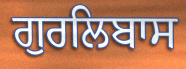
ਗੁਰਲਿਬਾਸ